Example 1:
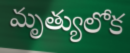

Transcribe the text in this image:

మృత్యులోక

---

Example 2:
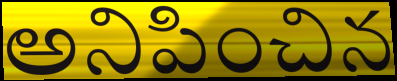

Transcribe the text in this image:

అనిపించిన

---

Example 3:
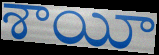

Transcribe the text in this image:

శాయీ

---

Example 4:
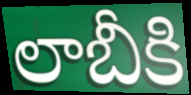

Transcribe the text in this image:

లాబీకి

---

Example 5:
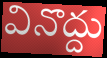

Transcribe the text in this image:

వినొద్దు